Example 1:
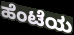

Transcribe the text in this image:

ಹೆಂಟೆಯ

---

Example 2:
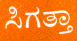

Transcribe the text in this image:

ಸಿಗತ್ತಾ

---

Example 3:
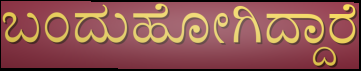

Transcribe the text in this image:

ಬಂದುಹೋಗಿದ್ದಾರೆ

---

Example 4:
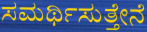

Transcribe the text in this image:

ಸಮರ್ಥಿಸುತ್ತೇನೆ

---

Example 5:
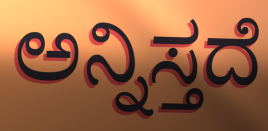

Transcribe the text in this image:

ಅನ್ನಿಸ್ತದೆ